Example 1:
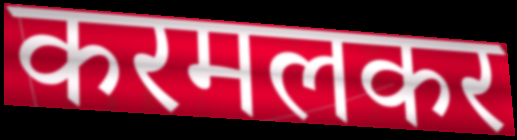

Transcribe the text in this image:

करमलकर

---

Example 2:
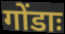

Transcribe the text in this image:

गोंडाः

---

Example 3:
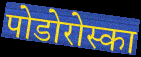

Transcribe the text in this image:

पोडोरोस्का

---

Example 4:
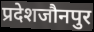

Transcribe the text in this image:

प्रदेशजौनपुर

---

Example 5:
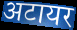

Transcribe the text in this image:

अटायर